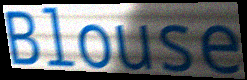
Blouse